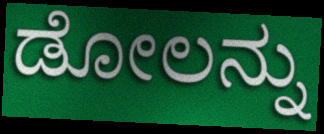
ಡೋಲನ್ನು